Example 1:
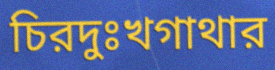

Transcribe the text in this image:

চিরদুঃখগাথার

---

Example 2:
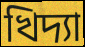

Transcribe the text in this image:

খিদ্যা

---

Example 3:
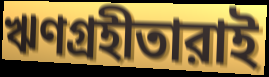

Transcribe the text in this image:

ঋণগ্রহীতারাই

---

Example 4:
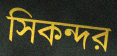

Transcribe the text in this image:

সিকন্দর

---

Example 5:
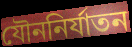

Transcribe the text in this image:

যৌননির্যাতন